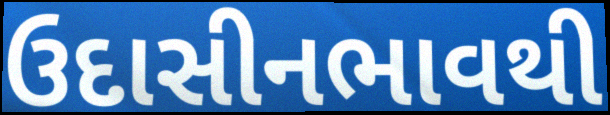
ઉદાસીનભાવથી